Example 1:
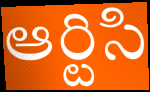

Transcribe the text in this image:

ఆర్టిసి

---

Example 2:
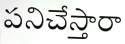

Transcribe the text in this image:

పనిచేస్తారా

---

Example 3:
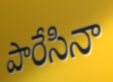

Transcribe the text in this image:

పారేసినా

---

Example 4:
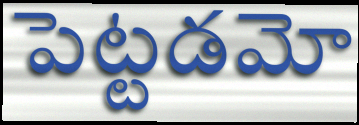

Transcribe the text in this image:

పెట్టడమో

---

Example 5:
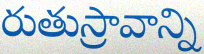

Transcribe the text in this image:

రుతుస్రావాన్ని